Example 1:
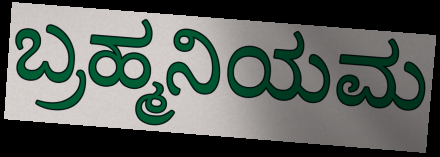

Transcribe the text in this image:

ಬ್ರಹ್ಮನಿಯಮ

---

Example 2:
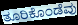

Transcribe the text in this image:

ತೂರಿಕೊಂಡೆವು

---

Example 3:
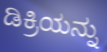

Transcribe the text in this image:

ಡಿಕ್ರಿಯನ್ನು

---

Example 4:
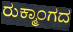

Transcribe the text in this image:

ರುಕ್ಮಾಂಗದ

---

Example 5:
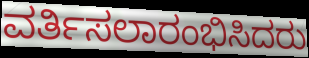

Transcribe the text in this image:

ವರ್ತಿಸಲಾರಂಭಿಸಿದರು